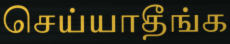
செய்யாதீங்க